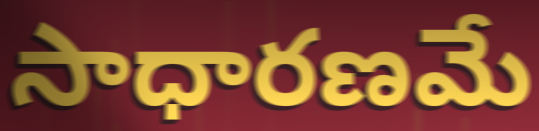
సాధారణమే